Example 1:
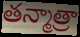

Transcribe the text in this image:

తన్మాత్రా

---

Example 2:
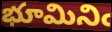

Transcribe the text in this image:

భూమినిఁ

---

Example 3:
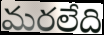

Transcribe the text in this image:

మరలేది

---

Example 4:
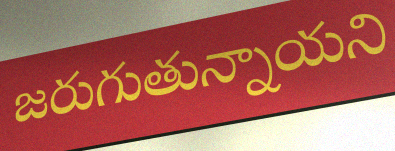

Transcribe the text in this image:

జరుగుతున్నాయని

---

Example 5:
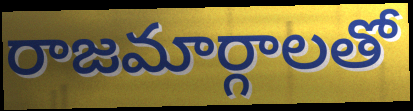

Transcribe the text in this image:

రాజమార్గాలతో